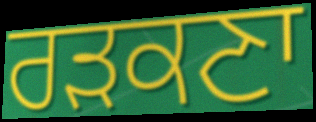
ਰੜਕਣਾ